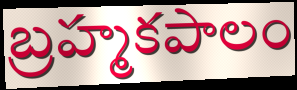
బ్రహ్మకపాలం